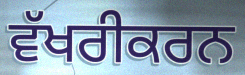
ਵੱਖਰੀਕਰਨ